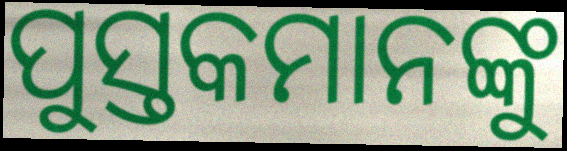
ପୁସ୍ତକମାନଙ୍କୁ